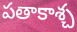
పతాకాశ్చ